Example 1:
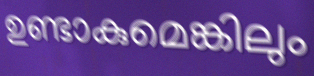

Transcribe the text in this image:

ഉണ്ടാകുമെങ്കിലും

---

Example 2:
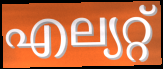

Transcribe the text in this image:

എല്യറ്റ്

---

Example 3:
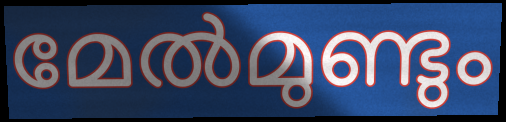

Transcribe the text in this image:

മേൽമുണ്ടും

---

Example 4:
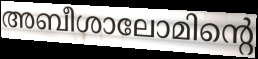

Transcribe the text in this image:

അബീശാലോമിന്റെ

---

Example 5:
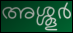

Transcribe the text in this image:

അശ്ശൂർ